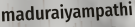
maduraiyampathi